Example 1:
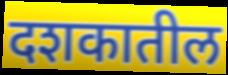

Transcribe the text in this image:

दशकातील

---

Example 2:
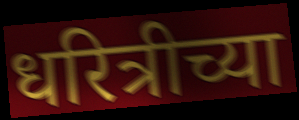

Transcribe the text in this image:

धरित्रीच्या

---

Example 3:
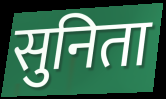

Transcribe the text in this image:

सुनिता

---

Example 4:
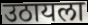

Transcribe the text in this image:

उठायला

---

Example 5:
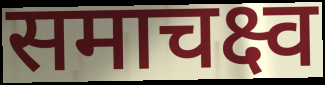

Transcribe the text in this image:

समाचक्ष्व